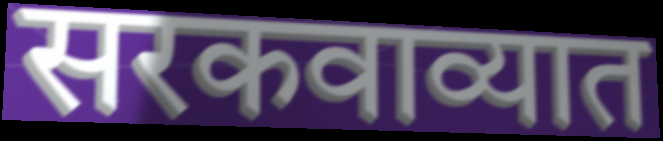
सरकवाव्यात